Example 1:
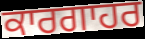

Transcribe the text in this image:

ਕਾਰਗਾਹਰ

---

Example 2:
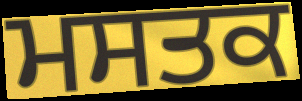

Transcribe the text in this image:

ਮਸਤਕ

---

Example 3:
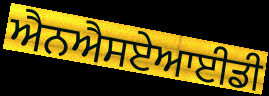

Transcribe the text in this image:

ਐਨਐਸਏਆਈਡੀ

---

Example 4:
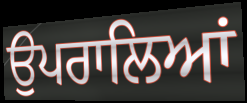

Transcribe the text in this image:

ਉਪਰਾਲਿਆਂ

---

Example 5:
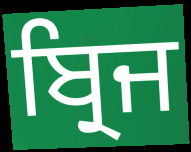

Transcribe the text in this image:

ਬ੍ਰਿਜ